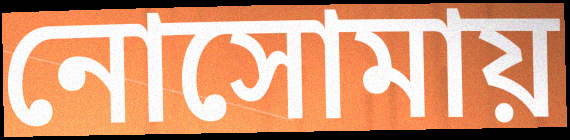
নোসোমায়